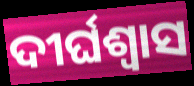
ଦୀର୍ଘଶ୍ୱାସ